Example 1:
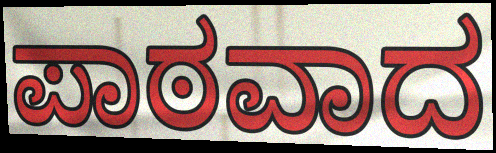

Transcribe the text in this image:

ಪಾಠವಾದ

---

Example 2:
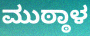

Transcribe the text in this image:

ಮುಠ್ಠಾಳ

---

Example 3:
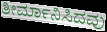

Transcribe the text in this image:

ತೀರ್ಮಾನಿಸಿದವು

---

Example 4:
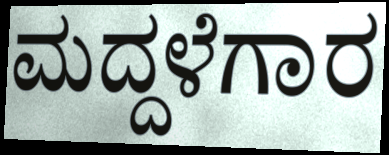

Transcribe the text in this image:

ಮದ್ದಳೆಗಾರ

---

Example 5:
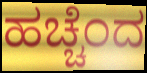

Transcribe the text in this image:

ಹಚ್ಚೆಂದ